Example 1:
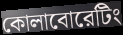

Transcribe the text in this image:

কোলাবোরেটিং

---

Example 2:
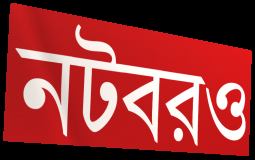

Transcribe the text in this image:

নটবরও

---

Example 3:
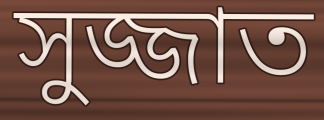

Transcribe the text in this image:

সুজ্জাত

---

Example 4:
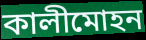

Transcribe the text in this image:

কালীমোহন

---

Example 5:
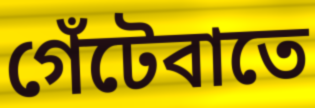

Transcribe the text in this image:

গেঁটেবাতে